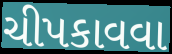
ચીપકાવવા